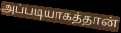
அப்படியாகத்தான்